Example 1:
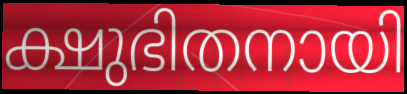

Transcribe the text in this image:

ക്ഷുഭിതനായി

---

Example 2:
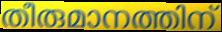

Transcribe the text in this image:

തീരുമാനത്തിന്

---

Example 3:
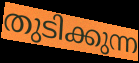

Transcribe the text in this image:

തുടിക്കുന്ന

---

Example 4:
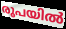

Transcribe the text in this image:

രൂപയിൽ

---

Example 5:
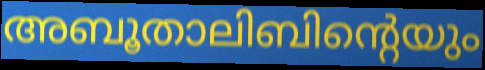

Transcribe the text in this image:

അബൂതാലിബിന്റെയും